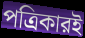
পত্রিকারই